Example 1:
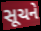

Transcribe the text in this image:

સૂચને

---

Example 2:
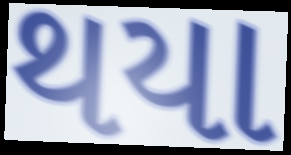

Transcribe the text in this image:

થયા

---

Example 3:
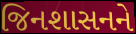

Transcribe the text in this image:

જિનશાસનને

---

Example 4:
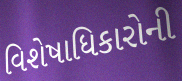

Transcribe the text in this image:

વિશેષાધિકારોની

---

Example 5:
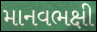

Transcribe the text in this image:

માનવભક્ષી